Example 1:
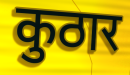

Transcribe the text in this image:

कुठार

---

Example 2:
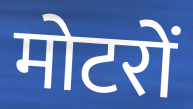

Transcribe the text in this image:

मोटरों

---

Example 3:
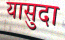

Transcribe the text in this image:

यासुदा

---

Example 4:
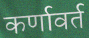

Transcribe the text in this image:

कर्णावर्त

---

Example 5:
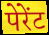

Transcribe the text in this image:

पेरेंट